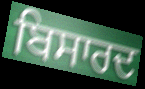
ਬਿਸਾਰਦ